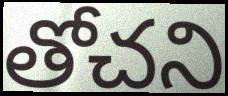
తోచని